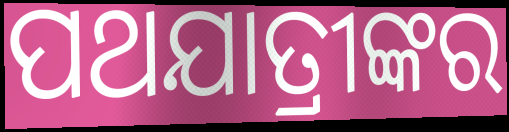
ପଥଯାତ୍ରୀଙ୍କର